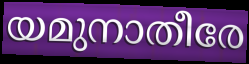
യമുനാതീരേ